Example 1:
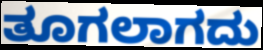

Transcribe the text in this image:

ತೂಗಲಾಗದು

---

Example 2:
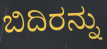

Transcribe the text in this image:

ಬಿದಿರನ್ನು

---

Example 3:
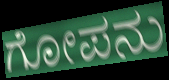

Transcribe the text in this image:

ಗೋಪನು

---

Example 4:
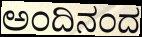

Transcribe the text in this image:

ಅಂದಿನಂದ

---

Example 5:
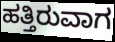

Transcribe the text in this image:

ಹತ್ತಿರುವಾಗ